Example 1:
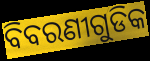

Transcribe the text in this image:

ବିବରଣୀଗୁଡିକ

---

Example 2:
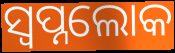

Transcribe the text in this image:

ସ୍ଵପ୍ନଲୋକ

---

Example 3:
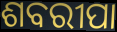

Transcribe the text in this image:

ଶବରୀପା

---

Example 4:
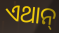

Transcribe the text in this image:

ଏଥାନ୍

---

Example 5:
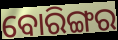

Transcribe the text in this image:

ବୋରିଙ୍ଗର